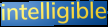
intelligible